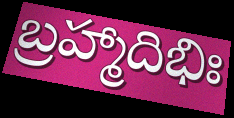
బ్రహ్మాదిభిః